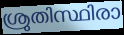
ശ്രുതിസ്ഥിരാ